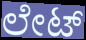
ಲೇಟ್